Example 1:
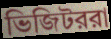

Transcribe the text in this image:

ভিজিটররা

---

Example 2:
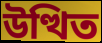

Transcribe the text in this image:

উত্থিত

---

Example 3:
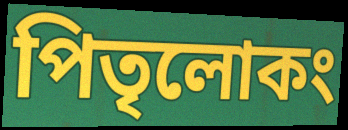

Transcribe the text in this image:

পিতৃলোকং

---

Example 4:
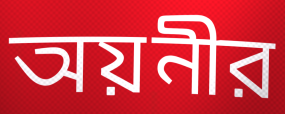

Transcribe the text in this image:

অয়নীর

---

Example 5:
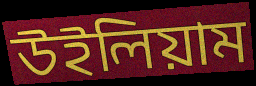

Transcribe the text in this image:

উইলিয়াম